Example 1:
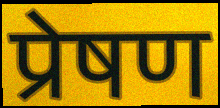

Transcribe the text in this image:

प्रेषण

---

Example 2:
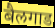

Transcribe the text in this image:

बैलगाड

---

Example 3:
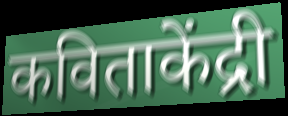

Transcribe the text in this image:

कविताकेंद्री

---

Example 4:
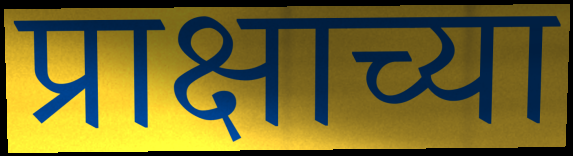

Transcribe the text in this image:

प्राक्षाच्या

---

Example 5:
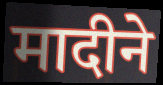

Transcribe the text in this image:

मादीने